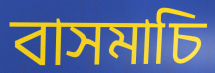
বাসমাচি